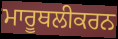
ਮਾਰੂਥਲੀਕਰਨ